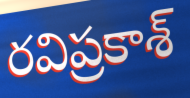
రవిప్రకాశ్